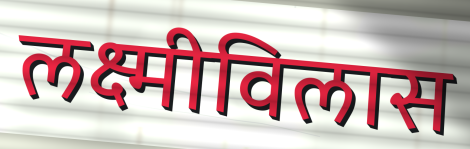
लक्ष्मीविलास